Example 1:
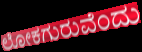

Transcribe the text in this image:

ಲೋಕಗುರುವೆಂದು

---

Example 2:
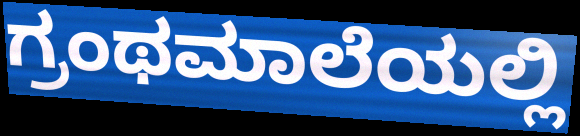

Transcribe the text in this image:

ಗ್ರಂಥಮಾಲೆಯಲ್ಲಿ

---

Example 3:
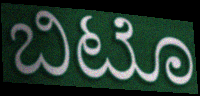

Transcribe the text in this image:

ಬಿಟೊ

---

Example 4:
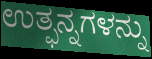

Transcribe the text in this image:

ಉತ್ಫನ್ನಗಳನ್ನು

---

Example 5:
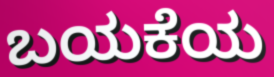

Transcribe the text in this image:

ಬಯಕೆಯ